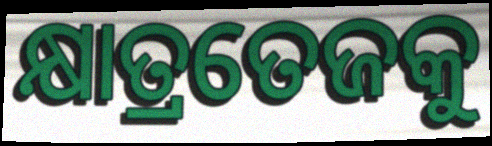
କ୍ଷାତ୍ରତେଜକୁ